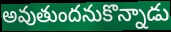
అవుతుందనుకొన్నాడు